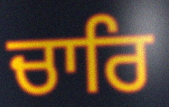
ਚਾਰਿ